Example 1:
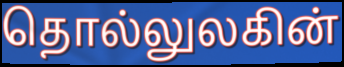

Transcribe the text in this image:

தொல்லுலகின்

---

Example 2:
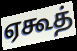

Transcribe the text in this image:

ஏகூத்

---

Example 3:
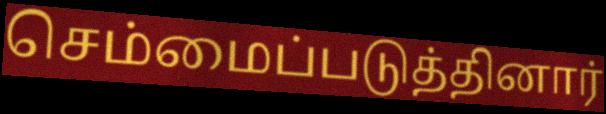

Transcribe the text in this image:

செம்மைப்படுத்தினார்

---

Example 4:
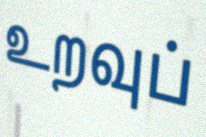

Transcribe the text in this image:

உறவுப்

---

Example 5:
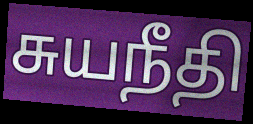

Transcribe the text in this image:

சுயநீதி